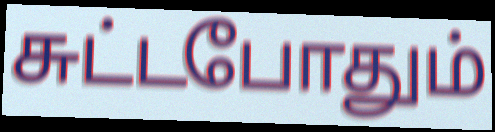
சுட்டபோதும்